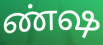
ண்ஷ